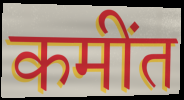
कमींत